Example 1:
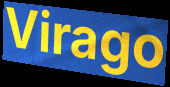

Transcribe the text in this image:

Virago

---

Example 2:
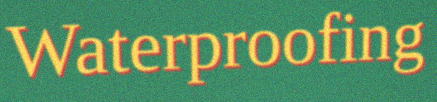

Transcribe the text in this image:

Waterproofing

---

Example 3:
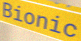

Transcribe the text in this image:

Bionic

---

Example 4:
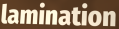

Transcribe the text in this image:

lamination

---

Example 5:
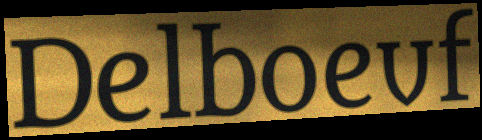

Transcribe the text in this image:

Delboeuf